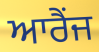
ਆਰੈਂਜ